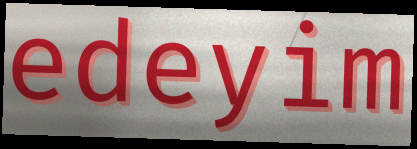
edeyim